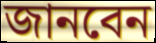
জানবেন